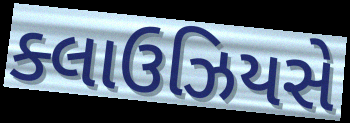
ક્લાઉઝિયસે